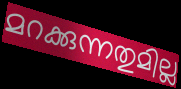
മറക്കുന്നതുമില്ല